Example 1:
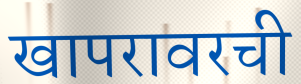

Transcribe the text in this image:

खापरावरची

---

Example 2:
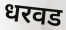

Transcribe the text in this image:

धरवड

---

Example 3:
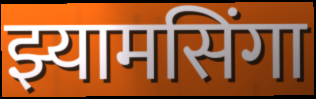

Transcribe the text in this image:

झ्यामसिंगा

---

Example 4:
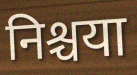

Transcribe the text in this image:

निश्चया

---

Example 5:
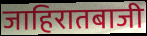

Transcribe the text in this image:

जाहिरातबाजी